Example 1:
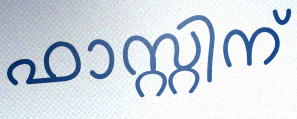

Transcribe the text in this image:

ഫാസ്റ്റിന്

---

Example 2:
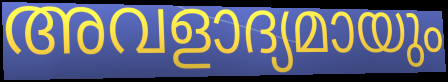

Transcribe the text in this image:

അവളാദ്യമായും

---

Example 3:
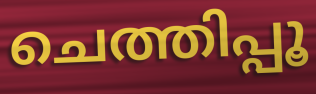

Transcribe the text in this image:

ചെത്തിപ്പൂ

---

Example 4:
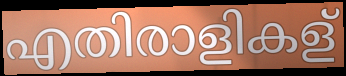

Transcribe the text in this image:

എതിരാളികള്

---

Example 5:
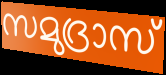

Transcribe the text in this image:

സമുദ്രാസ്